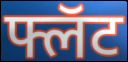
फ्लॅट